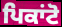
ਪਿਕਾਂਟੋ